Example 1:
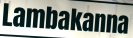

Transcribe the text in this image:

Lambakanna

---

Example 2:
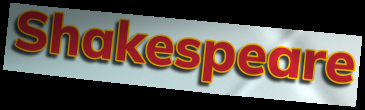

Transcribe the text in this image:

Shakespeare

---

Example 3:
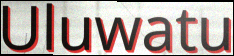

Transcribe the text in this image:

Uluwatu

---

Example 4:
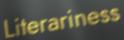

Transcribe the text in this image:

Literariness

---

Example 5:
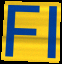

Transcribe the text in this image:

FI